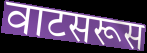
वाटसरूस